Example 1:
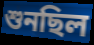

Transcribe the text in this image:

শুনছিল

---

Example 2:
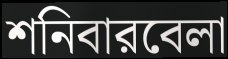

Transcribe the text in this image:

শনিবারবেলা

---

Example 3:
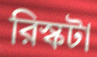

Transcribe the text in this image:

রিস্কটা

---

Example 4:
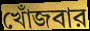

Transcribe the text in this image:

খোঁজবার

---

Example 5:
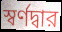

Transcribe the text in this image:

স্বর্ণদ্বার